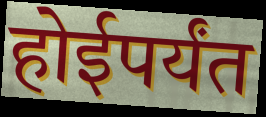
होईपर्यंत